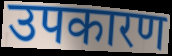
उपकारण